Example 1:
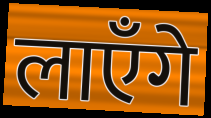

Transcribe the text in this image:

लाएँगे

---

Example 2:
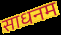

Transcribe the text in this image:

साधनम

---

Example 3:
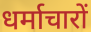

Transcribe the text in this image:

धर्माचारों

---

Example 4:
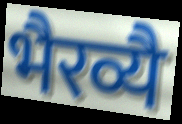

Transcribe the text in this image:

भैरव्यै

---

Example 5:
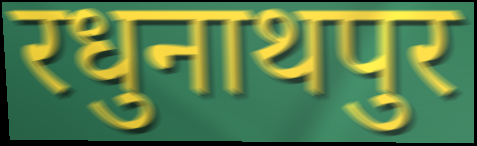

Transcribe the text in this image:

रधुनाथपुर